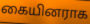
கையினராக